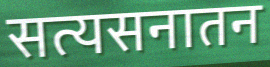
सत्यसनातन